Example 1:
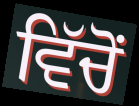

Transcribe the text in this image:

ਵਿੱਚੋੰ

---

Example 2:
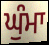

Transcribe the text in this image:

ਘੁੰਮਾ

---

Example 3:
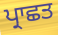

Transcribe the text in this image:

ਪ੍ਰਾਛਤ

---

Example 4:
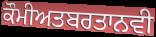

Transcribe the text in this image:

ਕੌਮੀਅਤਬਰਤਾਨਵੀ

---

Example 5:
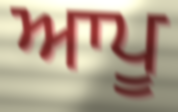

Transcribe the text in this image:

ਆਪੂ